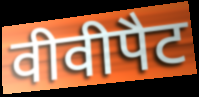
वीवीपैट